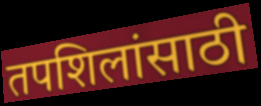
तपशिलांसाठी